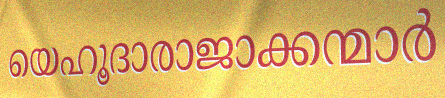
യെഹൂദാരാജാക്കന്മാർ